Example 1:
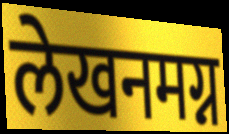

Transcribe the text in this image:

लेखनमग्न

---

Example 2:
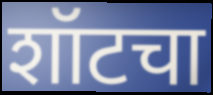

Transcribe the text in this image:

शॉटचा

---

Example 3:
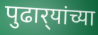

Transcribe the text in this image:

पुढार्‍यांच्या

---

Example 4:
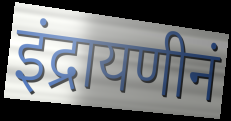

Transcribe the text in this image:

इंद्रायणीनं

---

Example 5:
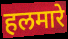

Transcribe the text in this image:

हलमारे